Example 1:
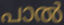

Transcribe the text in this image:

പാൽ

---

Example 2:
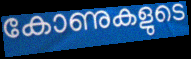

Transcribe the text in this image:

കോണുകളുടെ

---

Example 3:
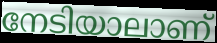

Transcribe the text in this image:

നേടിയാലാണ്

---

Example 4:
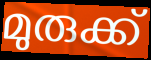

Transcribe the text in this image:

മുരുക്ക്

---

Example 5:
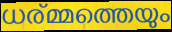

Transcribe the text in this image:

ധര്മ്മത്തെയും